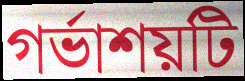
গর্ভাশয়টি